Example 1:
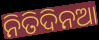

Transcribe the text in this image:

ନିତିଦିନଆ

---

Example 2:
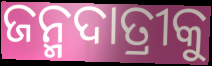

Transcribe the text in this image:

ଜନ୍ମଦାତ୍ରୀକୁ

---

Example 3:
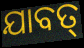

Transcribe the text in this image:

ଯାବତ୍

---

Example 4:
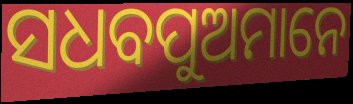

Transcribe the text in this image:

ସଧବପୁଅମାନେ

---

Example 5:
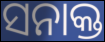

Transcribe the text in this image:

ସନାକ୍ତ